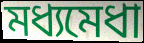
মধ্যমেধা